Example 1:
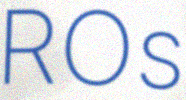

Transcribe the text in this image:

ROs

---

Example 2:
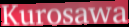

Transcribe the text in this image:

Kurosawa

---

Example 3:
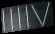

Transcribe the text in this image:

IIIIV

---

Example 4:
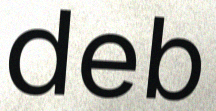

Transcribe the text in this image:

deb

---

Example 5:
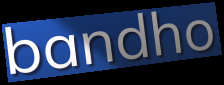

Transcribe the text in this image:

bandho